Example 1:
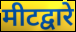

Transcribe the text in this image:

मीटद्वारे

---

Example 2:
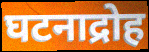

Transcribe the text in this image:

घटनाद्रोह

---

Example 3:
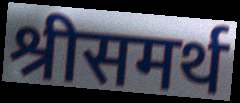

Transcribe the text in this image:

श्रीसमर्थ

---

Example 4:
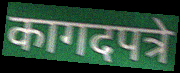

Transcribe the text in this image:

कागदपत्रे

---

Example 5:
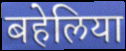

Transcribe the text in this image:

बहेलिया